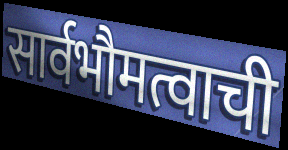
सार्वभौमत्वाची